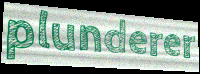
plunderer